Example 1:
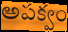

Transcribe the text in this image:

అపక్వం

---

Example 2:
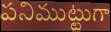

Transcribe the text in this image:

పనిముట్టుగా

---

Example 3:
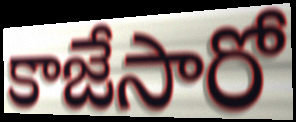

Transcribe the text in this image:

కాజేసారో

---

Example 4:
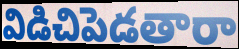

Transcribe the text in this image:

విడిచిపెడతారా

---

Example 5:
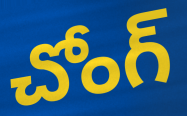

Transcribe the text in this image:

చోంగ్